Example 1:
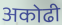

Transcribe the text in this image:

अकोढी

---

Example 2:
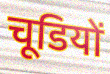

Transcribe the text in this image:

चूडियों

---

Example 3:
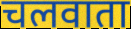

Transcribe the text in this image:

चलवाता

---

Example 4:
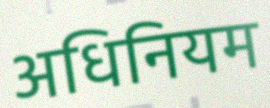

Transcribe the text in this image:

अधिनियम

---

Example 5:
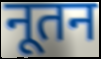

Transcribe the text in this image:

नूतन